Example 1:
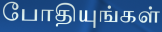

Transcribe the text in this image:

போதியுங்கள்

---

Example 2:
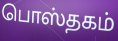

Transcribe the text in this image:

பொஸ்தகம்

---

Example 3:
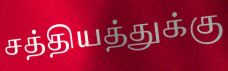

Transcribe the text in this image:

சத்தியத்துக்கு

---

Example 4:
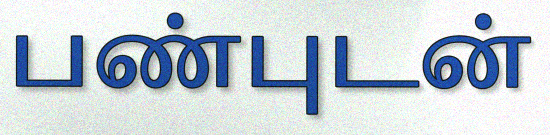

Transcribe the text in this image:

பண்புடன்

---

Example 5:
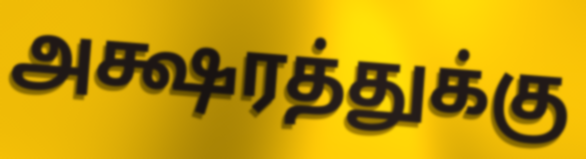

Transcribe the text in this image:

அக்ஷரத்துக்கு